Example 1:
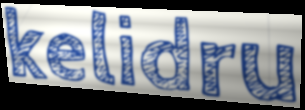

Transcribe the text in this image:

kelidru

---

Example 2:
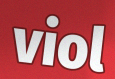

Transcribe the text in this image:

viol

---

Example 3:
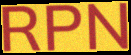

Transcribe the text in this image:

RPN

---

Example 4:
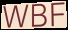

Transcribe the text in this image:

WBF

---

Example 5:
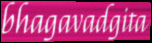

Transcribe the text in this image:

bhagavadgita